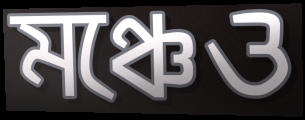
মঞ্চেও